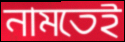
নামতেই